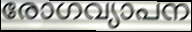
രോഗവ്യാപന